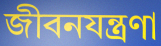
জীবনযন্ত্রণা